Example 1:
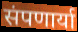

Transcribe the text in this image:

संपणार्या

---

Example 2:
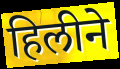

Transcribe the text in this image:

हिलीने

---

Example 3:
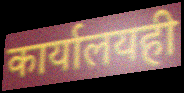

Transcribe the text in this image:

कार्यालयही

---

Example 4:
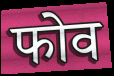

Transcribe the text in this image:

फोव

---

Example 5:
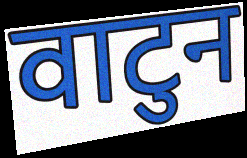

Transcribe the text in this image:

वाटुन